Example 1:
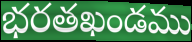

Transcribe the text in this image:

భరతఖండము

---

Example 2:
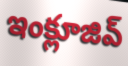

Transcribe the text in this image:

ఇంక్లూజివ్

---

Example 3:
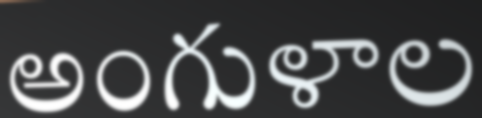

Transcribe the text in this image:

అంగుళాల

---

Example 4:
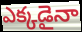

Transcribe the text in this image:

ఎక్కడైనా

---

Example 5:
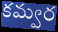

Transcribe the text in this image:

కమ్వర